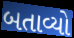
બતાવ્યો